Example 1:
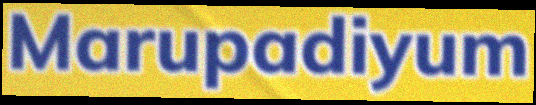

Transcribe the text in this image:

Marupadiyum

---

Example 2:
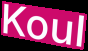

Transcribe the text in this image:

Koul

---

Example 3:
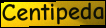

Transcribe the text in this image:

Centipeda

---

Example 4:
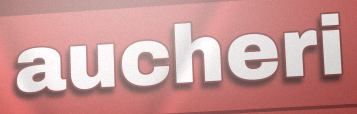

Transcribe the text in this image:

aucheri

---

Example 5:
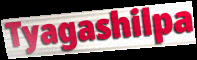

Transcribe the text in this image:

Tyagashilpa